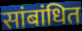
सांबांधित